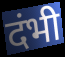
दंभी